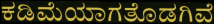
ಕಡಿಮೆಯಾಗತೊಡಗಿವೆ